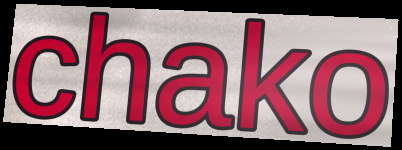
chako